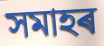
সমাহৰ